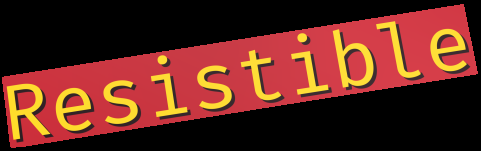
Resistible